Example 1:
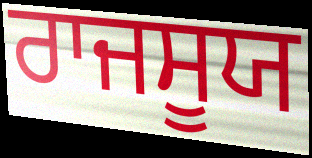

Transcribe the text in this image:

ਰਾਜਸੂਯ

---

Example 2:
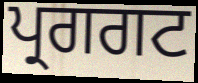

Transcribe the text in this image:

ਪ੍ਰਗਗਟ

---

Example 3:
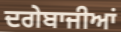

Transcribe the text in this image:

ਦਗੇਬਾਜੀਆਂ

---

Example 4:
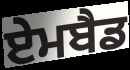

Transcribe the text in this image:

ਏਮਬੈਡ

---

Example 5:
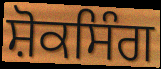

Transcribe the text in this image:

ਸ਼ੋਕਸਿੰਗ